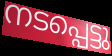
നടപ്പെട്ടു